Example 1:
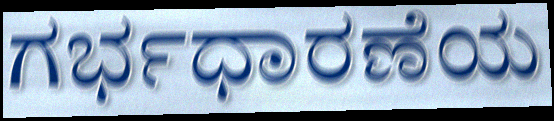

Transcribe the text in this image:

ಗರ್ಭಧಾರಣೆಯ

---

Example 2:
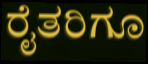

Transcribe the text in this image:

ರೈತರಿಗೂ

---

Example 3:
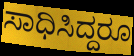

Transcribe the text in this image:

ಸಾಧಿಸಿದ್ದರೂ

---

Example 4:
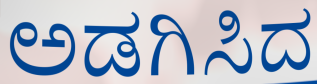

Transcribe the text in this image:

ಅಡಗಿಸಿದ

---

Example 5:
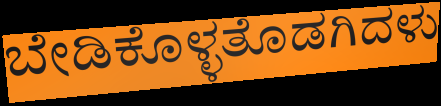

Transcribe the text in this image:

ಬೇಡಿಕೊಳ್ಳತೊಡಗಿದಳು